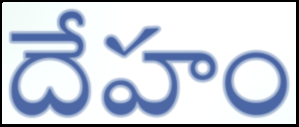
దేహం